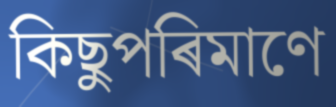
কিছুপৰিমাণে